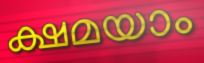
ക്ഷമയാം